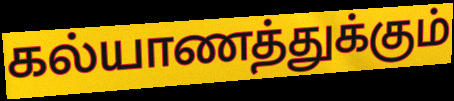
கல்யாணத்துக்கும்